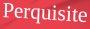
Perquisite